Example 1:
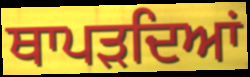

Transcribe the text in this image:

ਥਾਪੜਦਿਆਂ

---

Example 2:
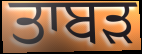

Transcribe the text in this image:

ਤਾਬੜ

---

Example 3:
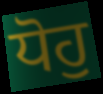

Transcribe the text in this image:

ਧੋਹੁ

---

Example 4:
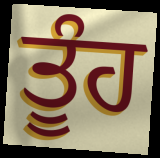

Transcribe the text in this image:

ਤੂੰਹ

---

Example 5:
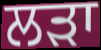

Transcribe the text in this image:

ਲੜਾ